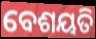
ବେଶୟତି